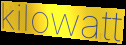
kilowatt